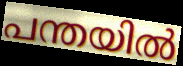
പന്തയിൽ